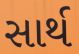
સાર્થ